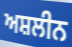
ਅਸ਼ਲੀਨ